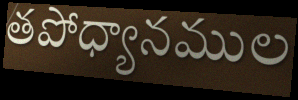
తపోధ్యానముల